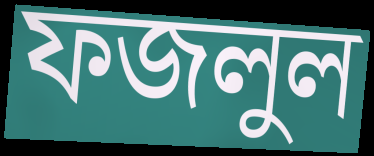
ফজলুল